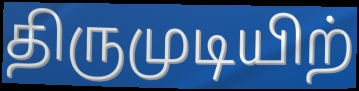
திருமுடியிற்